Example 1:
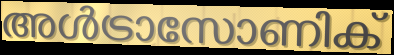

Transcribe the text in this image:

അൾട്രാസോണിക്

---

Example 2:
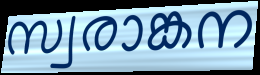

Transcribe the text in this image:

സ്വരാങ്കന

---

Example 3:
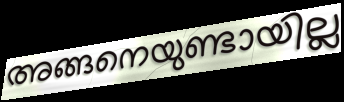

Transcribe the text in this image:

അങ്ങനെയുണ്ടായില്ല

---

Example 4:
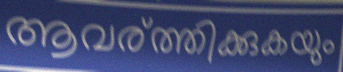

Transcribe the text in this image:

ആവര്ത്തിക്കുകയും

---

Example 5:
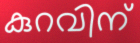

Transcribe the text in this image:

കുറവിന്